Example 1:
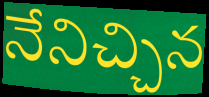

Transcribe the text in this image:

నేనిచ్చిన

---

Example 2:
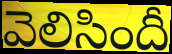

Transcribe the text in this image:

వెలిసిందీ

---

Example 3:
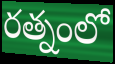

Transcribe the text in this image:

రత్నంలో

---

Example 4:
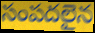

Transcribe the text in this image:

సంపదలైన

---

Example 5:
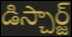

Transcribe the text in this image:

డిస్చార్జ్